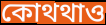
কোথথাও